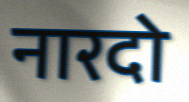
नारदो